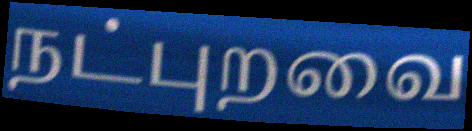
நட்புறவை